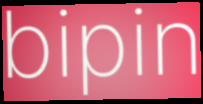
bipin